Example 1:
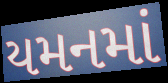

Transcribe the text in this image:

યમનમાં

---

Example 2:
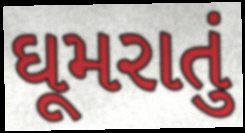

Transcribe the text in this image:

ઘૂમરાતું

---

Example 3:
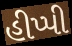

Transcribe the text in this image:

હીપ્પી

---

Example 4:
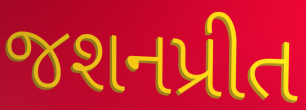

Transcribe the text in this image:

જશનપ્રીત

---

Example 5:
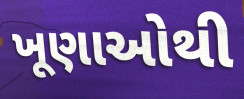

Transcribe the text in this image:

ખૂણાઓથી